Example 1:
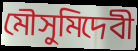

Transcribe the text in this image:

মৌসুমিদেবী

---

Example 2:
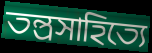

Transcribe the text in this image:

তন্ত্রসাহিত্যে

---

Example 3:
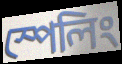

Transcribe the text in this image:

স্পেলিং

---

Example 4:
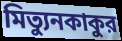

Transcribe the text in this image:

মিত্যুনকাকুর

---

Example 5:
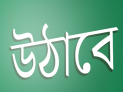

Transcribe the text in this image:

উঠাবে